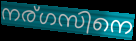
നര്ഗസിനെ